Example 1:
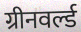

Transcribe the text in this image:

ग्रीनवर्ल्ड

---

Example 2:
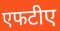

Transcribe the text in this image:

एफटीए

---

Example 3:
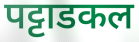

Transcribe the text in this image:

पट्टाडकल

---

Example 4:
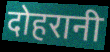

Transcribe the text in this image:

दोहरानी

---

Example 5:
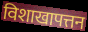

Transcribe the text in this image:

विशाखापत्तन